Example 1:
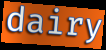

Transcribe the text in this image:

dairy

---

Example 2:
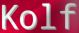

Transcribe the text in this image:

Kolf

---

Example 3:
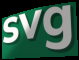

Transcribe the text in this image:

svg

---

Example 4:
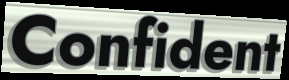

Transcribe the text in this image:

Confident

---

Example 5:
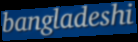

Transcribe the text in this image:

bangladeshi